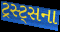
ટ્રસ્ટ્સના